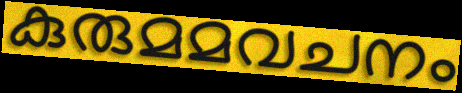
കുരുമമവചനം